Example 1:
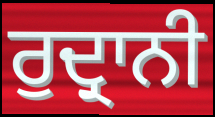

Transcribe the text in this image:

ਰੁਦ੍ਰਾਨੀ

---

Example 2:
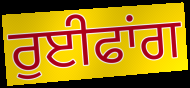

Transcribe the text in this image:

ਰੁਈਫਾਂਗ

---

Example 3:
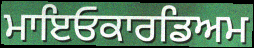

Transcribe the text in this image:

ਮਾਇਓਕਾਰਡਿਅਮ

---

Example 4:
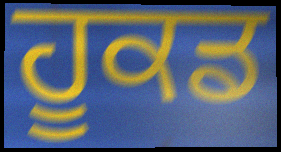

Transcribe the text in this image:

ਹੂਕਡ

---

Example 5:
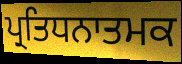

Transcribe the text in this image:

ਪ੍ਰਤਿਧਨਾਤਮਕ